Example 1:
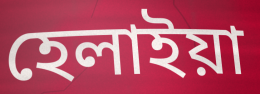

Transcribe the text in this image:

হেলাইয়া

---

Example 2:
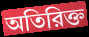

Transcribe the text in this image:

অতিরিক্ত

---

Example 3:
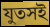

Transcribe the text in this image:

যুতসই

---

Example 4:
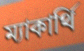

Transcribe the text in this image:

ম্যাকার্থি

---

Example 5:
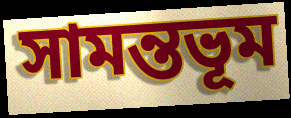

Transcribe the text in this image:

সামন্তভূম